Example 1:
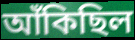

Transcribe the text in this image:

আঁকিছিল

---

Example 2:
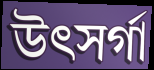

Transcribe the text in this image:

উৎসৰ্গা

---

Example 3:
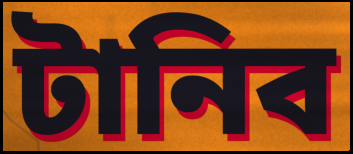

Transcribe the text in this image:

টানিব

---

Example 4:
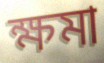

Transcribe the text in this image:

ক্ষমা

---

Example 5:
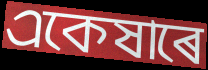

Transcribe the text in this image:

একেষাৰে